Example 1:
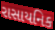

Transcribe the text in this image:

રાસાયનિક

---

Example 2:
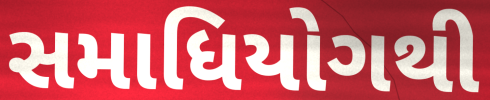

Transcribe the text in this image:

સમાધિયોગથી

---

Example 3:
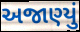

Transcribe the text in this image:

અજાણ્યું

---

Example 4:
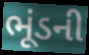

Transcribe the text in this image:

ભૂંડની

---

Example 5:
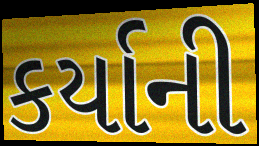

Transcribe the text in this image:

કર્યાની